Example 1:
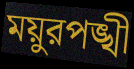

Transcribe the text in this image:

ময়ুরপঙ্খী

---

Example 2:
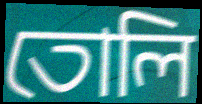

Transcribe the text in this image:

তোলি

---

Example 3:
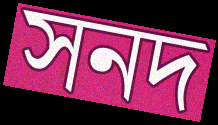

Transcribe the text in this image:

সনদ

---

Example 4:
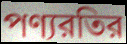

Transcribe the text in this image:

পণ্যরতির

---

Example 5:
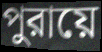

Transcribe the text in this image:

পুরায়ে